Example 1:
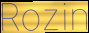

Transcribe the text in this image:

Rozin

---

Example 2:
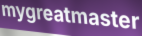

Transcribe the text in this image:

mygreatmaster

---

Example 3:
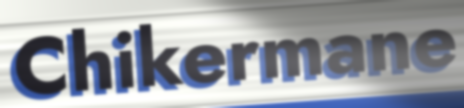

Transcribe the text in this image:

Chikermane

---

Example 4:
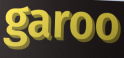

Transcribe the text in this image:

garoo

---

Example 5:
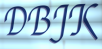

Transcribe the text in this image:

DBJK